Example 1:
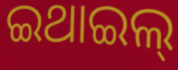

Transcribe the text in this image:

ଇଥାଇଲ୍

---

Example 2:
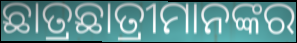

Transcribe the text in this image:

ଛାତ୍ରଛାତ୍ରୀମାନଙ୍କର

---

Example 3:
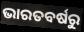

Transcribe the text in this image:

ଭାରତବର୍ଷରୁ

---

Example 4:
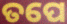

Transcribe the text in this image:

ତପେ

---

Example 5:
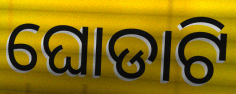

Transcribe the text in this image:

ଘୋଡାଟି